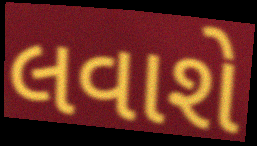
લવાશે